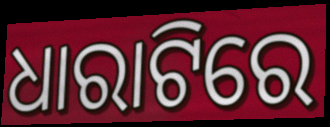
ଧାରାଟିରେ